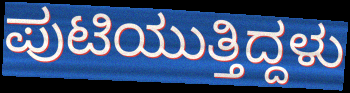
ಪುಟಿಯುತ್ತಿದ್ದಳು